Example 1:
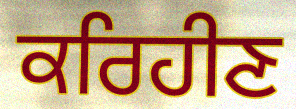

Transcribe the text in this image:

ਕਰਿਹੀਣ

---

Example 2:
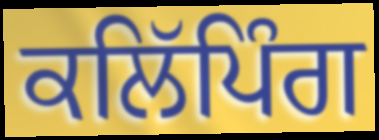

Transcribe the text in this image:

ਕਲਿੱਪਿੰਗ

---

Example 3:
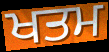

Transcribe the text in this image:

ਖਤਮ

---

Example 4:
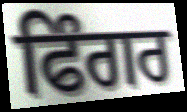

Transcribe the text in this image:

ਫਿੰਗਰ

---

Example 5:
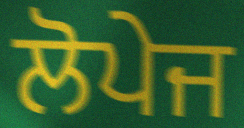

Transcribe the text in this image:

ਲੋਪੇਜ